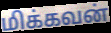
மிக்கவன்